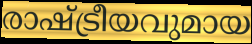
രാഷ്ട്രീയവുമായ